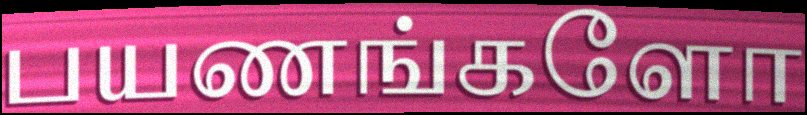
பயணங்களோ